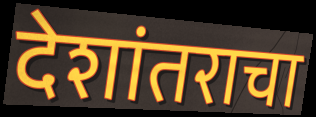
देशांतराचा